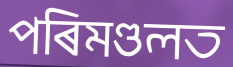
পৰিমণ্ডলত